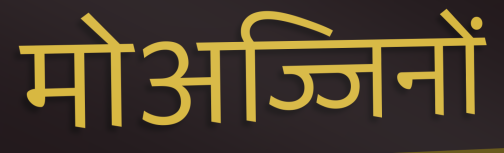
मोअज्जिनों